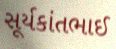
સૂર્યકાંતભાઈ